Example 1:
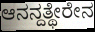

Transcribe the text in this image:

ಆನನ್ದತ್ಥೇರೇನ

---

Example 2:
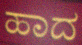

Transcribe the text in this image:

ಹಾದ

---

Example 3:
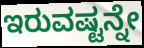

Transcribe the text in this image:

ಇರುವಷ್ಟನ್ನೇ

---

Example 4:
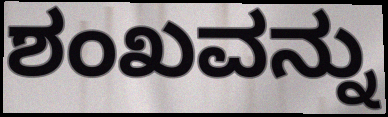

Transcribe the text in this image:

ಶಂಖವನ್ನು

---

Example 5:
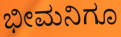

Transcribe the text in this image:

ಭೀಮನಿಗೂ